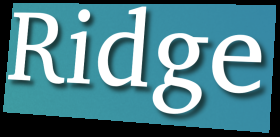
Ridge